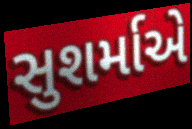
સુશર્માએ